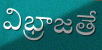
విభ్రాజతే